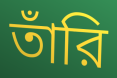
তাঁরি